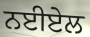
ਨਈਏਲ